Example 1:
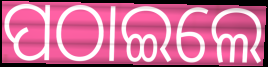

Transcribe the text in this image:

ପଠାଇଲେ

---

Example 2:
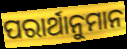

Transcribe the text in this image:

ପରାର୍ଥାନୁମାନ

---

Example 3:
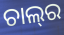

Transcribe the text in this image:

ଚାଲ୍‌ର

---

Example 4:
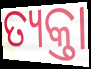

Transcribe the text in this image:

ତ୍ୟକ୍ତା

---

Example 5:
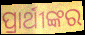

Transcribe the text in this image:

ପ୍ରାର୍ଥୀଙ୍କର